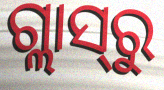
ଗ୍ଲାସ୍‍ରୁ